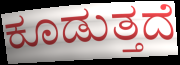
ಕೂಡುತ್ತದೆ